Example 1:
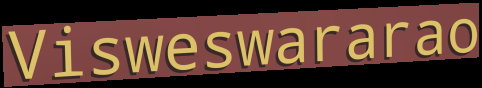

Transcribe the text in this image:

Visweswararao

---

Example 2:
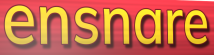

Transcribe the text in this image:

ensnare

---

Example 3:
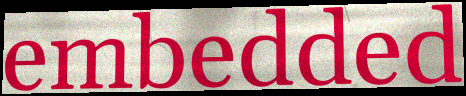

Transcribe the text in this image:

embedded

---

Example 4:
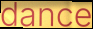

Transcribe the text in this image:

dance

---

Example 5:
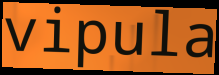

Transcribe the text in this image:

vipula